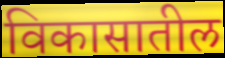
विकासातील